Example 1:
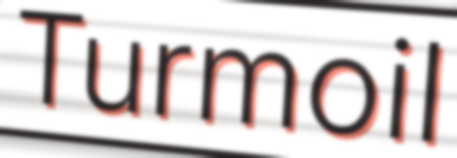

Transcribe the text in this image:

Turmoil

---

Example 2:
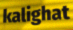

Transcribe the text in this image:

kalighat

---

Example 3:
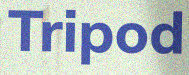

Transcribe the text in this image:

Tripod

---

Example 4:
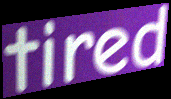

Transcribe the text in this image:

tired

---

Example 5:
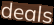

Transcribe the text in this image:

deals